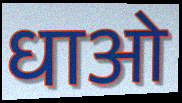
धाओ